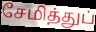
சேமித்துப்